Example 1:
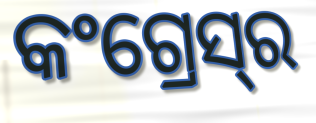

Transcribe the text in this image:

କଂଗ୍ରେସ୍‌ର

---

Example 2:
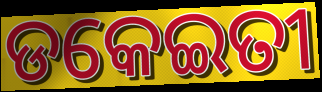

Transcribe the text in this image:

ଡକେଇତୀ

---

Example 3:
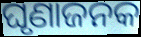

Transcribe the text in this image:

ଘୃଣାଜନକ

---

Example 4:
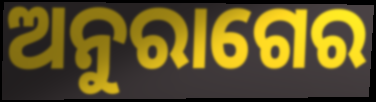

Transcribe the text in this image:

ଅନୁରାଗେର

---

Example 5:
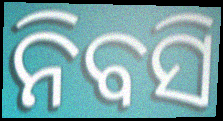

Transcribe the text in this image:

ନିବସି